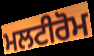
ਮਲਟੀਰੋਮ